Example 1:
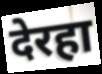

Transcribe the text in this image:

देरहा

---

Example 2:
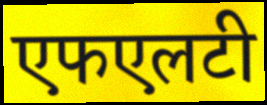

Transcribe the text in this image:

एफएलटी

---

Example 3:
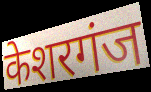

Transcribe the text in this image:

केशरगंज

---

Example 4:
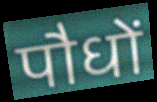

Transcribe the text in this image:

पौधों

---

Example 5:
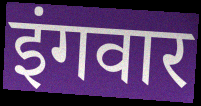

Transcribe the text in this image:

इंगवार